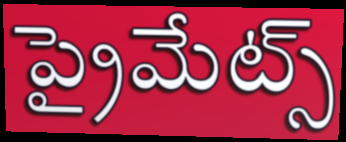
ప్రైమేట్స్